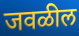
जवळील